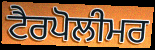
ਟੈਰਪੋਲੀਮਰ